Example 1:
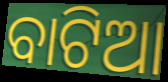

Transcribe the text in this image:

ବାଟିଆ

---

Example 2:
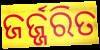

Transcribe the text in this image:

ଜର୍ଜ୍ଜରିତ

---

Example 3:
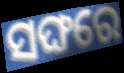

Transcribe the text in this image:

ସଙ୍ଘରେ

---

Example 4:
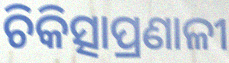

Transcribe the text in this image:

ଚିକିତ୍ସାପ୍ରଣାଳୀ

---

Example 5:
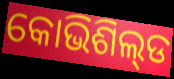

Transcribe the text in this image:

କୋଭିଶିଲ୍‌ଡ